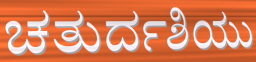
ಚತುರ್ದಶಿಯು